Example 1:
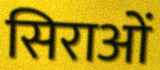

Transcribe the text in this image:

सिराओं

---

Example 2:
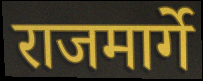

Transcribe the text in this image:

राजमार्गे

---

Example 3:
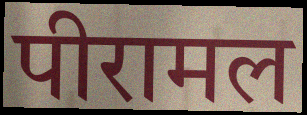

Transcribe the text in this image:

पीरामल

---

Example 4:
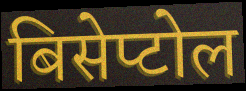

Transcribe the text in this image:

बिसेप्टोल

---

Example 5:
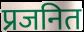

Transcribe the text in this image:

प्रजनित